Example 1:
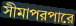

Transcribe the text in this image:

সীমাপরপারে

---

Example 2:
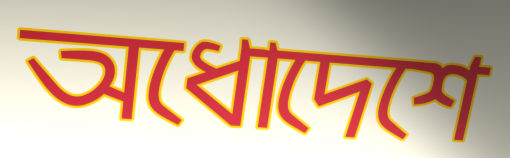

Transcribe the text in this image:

অধোদেশে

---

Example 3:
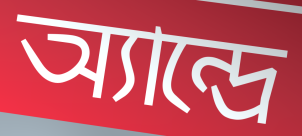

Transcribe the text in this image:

অ্যান্দ্রে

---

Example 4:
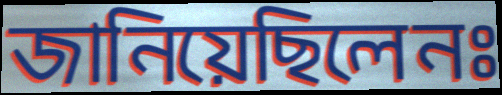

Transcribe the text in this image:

জানিয়েছিলেনঃ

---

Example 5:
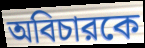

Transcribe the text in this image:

অবিচারকে